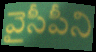
వైసీపీని